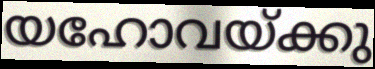
യഹോവയ്ക്കു